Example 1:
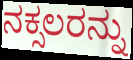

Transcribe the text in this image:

ನಕ್ಸಲರನ್ನು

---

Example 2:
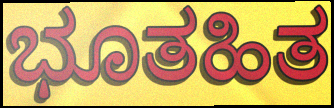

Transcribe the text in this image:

ಭೂತಹಿತ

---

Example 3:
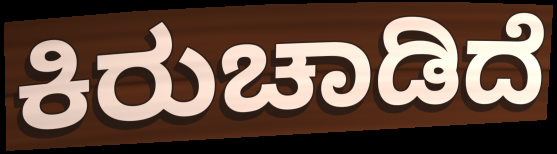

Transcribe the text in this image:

ಕಿರುಚಾಡಿದೆ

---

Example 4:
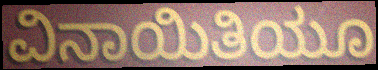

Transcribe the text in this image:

ವಿನಾಯಿತಿಯೂ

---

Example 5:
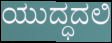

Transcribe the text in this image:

ಯುದ್ಧದಲಿ